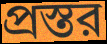
প্রস্তর